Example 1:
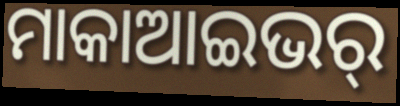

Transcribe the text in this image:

ମାକାଆଇଭର୍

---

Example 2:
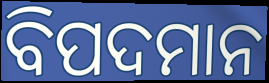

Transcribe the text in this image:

ବିପଦମାନ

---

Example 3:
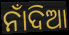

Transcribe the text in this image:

ନାଁଦିଆ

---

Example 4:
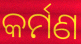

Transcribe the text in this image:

କର୍ମଣ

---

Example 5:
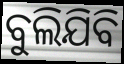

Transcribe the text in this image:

ବୁଲିଯିବି